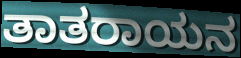
ತಾತರಾಯನ